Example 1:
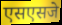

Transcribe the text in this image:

एसएसजे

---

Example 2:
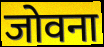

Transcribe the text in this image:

जोवना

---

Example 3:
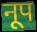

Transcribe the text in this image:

नूप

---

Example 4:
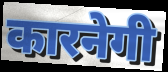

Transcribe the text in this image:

कारनेगी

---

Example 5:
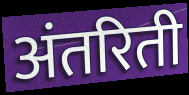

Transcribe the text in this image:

अंतरिती